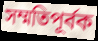
সম্মতিপূর্বক